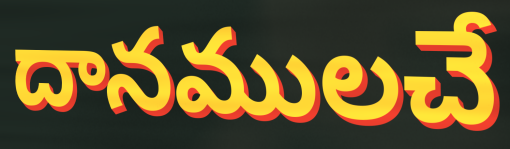
దానములచే